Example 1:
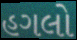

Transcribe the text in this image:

હગલો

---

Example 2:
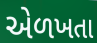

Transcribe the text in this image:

એળખતા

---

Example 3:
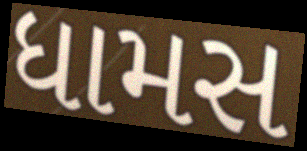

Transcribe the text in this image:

ધામસ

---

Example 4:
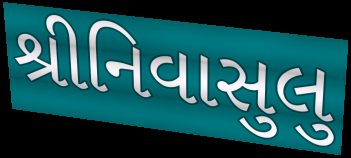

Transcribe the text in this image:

શ્રીનિવાસુલુ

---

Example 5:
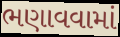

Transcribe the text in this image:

ભણાવવામાં